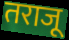
तराजू